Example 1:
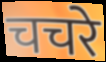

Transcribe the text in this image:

चचरे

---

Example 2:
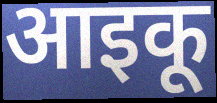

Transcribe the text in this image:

आइकू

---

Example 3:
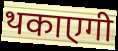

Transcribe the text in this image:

थकाएगी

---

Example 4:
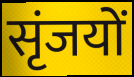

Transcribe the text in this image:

सृंजयों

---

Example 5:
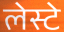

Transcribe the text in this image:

लेस्टे